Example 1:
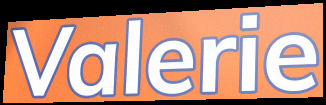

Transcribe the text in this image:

Valerie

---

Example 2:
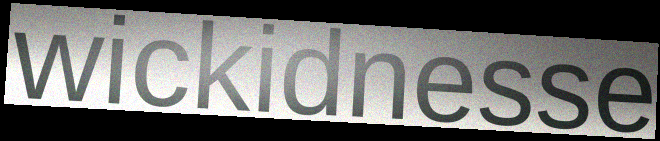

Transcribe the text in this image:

wickidnesse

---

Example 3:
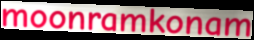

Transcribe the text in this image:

moonramkonam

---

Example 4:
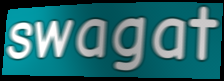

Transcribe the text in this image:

swagat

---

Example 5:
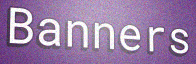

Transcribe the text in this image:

Banners